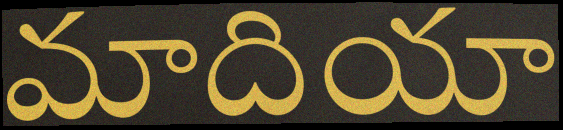
మాదియా